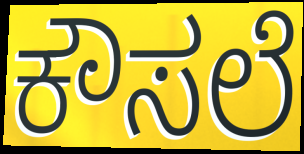
ಕೌಸಲೆ